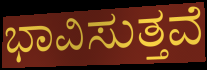
ಭಾವಿಸುತ್ತವೆ